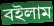
বইলাম